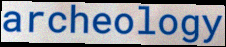
archeology